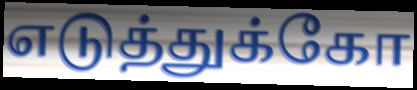
எடுத்துக்கோ